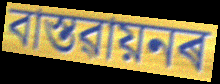
বাস্তৱায়নৰ